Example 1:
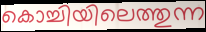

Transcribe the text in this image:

കൊച്ചിയിലെത്തുന്ന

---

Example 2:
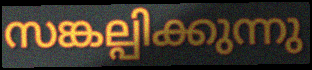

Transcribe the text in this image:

സങ്കല്പിക്കുന്നു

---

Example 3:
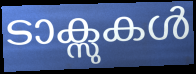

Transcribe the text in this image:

ടാക്സുകൾ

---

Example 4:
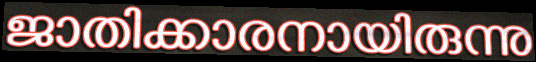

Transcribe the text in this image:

ജാതിക്കാരനായിരുന്നു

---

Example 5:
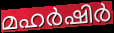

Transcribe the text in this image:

മഹർഷിർ